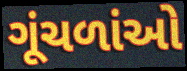
ગૂંચળાંઓ